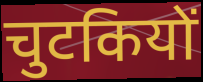
चुटकियों